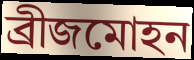
ব্রীজমোহন